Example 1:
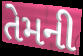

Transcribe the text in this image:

તેમની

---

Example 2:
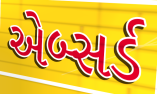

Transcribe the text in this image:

એબ્સર્ડ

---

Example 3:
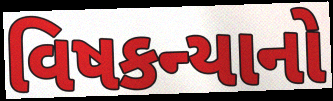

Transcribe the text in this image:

વિષકન્યાનો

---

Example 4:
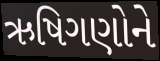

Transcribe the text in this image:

ઋષિગણોને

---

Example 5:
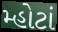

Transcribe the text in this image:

મ્હોટાં